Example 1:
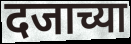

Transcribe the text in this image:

दजाच्या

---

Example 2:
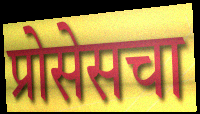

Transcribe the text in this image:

प्रोसेसचा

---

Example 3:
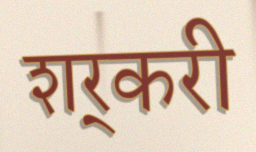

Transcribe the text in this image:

शर्करी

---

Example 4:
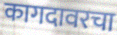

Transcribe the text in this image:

कागदावरचा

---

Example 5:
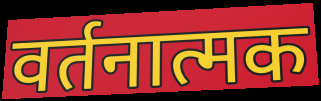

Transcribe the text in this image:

वर्तनात्मक